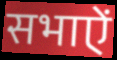
सभाऐं